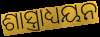
ଶାସ୍ତ୍ରାଧ୍ୟୟନ